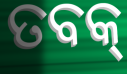
ତବକ୍